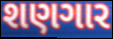
શણગાર